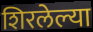
शिरलेल्या